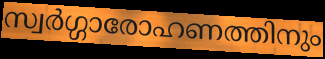
സ്വർഗ്ഗാരോഹണത്തിനും